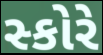
સ્કોરે